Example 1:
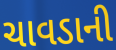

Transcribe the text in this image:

ચાવડાની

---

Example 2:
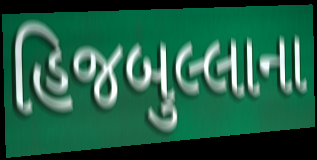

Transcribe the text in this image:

હિજબુલ્લાના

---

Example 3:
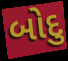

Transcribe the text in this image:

બોદુ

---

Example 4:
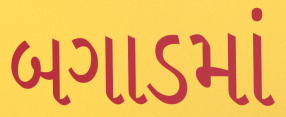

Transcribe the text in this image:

બગાડમાં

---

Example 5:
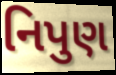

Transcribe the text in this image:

નિપુણ